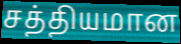
சத்தியமான